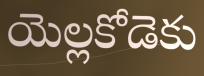
యెల్లకోడెకు